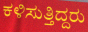
ಕಳಿಸುತ್ತಿದ್ದರು